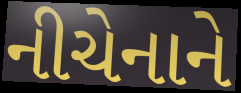
નીચેનાને